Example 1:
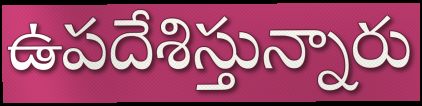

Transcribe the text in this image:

ఉపదేశిస్తున్నారు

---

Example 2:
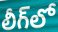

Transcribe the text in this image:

లీగ్‌లో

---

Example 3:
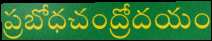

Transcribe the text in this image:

ప్రబోధచంద్రోదయం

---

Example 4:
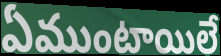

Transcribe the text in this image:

ఏముంటాయిలే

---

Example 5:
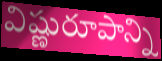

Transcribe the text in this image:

విష్ణురూపాన్ని